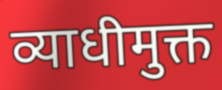
व्याधीमुक्त